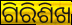
ଗିରିଶିଖ